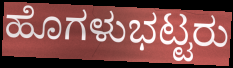
ಹೊಗಳುಭಟ್ಟರು